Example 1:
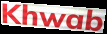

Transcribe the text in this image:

Khwab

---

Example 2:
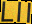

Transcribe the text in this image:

LII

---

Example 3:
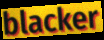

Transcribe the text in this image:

blacker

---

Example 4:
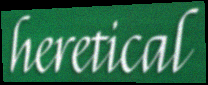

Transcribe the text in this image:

heretical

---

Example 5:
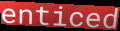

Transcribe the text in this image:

enticed